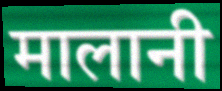
मालानी